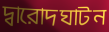
দ্বারোদঘাটন